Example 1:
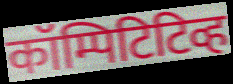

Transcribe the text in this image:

कॉम्पिटिटिव्ह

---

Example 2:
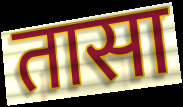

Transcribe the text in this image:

तासा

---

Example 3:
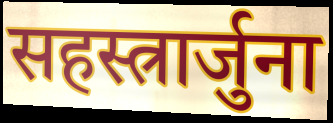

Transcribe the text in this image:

सहस्त्रार्जुना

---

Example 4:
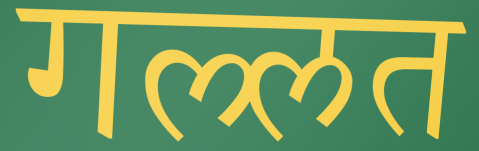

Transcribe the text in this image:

गल्लत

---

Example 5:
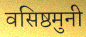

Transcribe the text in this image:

वसिष्ठमुनी